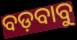
ବଡ଼ବାବୁ